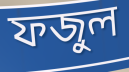
ফজুল